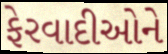
ફેરવાદીઓને